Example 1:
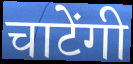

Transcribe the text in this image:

चाटेंगी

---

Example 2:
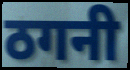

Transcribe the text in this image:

ठगनी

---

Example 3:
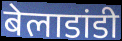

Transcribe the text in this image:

बेलाडांडी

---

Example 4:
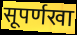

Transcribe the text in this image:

सूपर्णखा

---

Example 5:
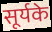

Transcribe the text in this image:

सूर्यके